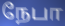
நேபா